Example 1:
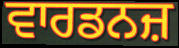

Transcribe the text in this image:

ਵਾਰਡਨਜ਼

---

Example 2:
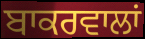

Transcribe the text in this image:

ਬਾਕਰਵਾਲਾਂ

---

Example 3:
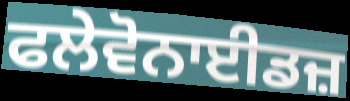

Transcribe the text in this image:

ਫਲੇਵੋਨਾਈਡਜ਼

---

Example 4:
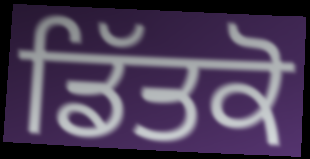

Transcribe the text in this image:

ਡਿੱਤਕੋ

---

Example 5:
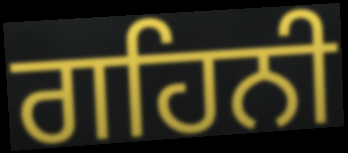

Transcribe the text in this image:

ਗਹਿਨੀ